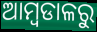
ଆମ୍ବଡାଳରୁ